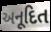
અનૂદિત